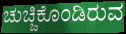
ಚುಚ್ಚಿಕೊಂಡಿರುವ